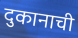
दुकानाची